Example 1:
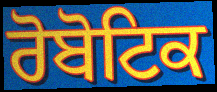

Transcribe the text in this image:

ਰੋਬੋਟਿਕ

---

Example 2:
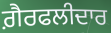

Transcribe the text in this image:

ਗ਼ੈਰਫਲੀਦਾਰ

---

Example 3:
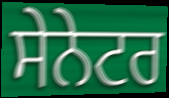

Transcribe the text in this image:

ਸੇਨੇਟਰ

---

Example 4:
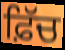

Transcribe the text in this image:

ਫ਼ਿੱਚ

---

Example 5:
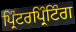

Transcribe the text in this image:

ਪ੍ਰਿੰਟਰਪ੍ਰਿੰਟਿੰਗ